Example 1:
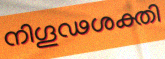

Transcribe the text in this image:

നിഗൂഢശക്തി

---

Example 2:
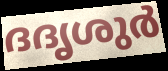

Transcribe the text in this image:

ദദൃശുർ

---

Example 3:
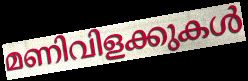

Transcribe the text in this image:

മണിവിളക്കുകൾ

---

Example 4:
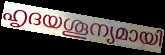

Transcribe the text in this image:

ഹൃദയശൂന്യമായി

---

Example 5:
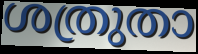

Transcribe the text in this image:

ശത്രുതാ